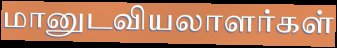
மானுடவியலாளர்கள்